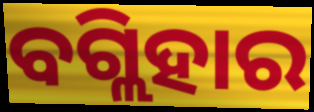
ବଗ୍ଲିହାର